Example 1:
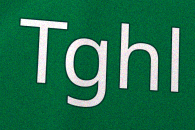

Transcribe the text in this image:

Tghl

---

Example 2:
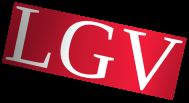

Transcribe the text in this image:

LGV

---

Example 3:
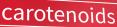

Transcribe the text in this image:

carotenoids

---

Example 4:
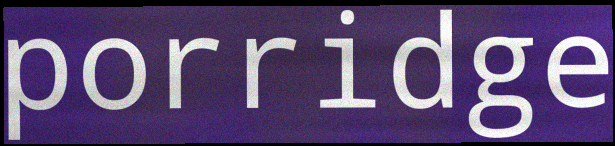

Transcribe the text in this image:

porridge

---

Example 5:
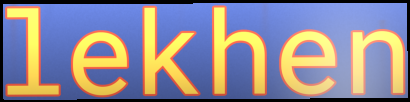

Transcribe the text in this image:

lekhen